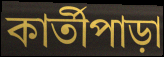
কার্তীপাড়া